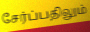
சேர்ப்பதிலும்